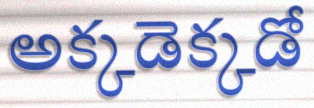
అక్కడెక్కడో